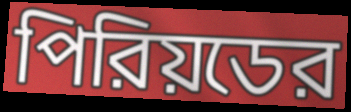
পিরিয়ডের